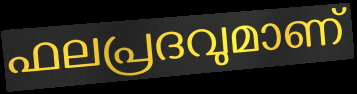
ഫലപ്രദവുമാണ്